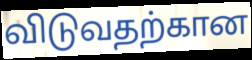
விடுவதற்கான